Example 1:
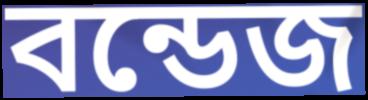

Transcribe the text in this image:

বন্ডেজ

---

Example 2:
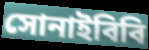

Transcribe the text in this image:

সোনাইবিবি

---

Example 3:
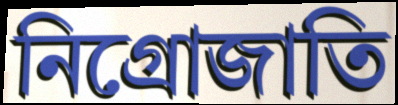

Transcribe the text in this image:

নিগ্রোজাতি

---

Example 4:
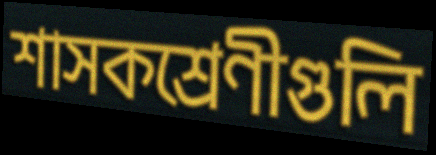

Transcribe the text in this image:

শাসকশ্রেণীগুলি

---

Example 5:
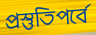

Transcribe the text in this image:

প্রস্তুতিপর্বে